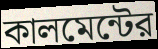
কালমেন্টের